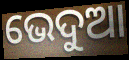
ଭେଦୁଆ